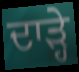
ਦਾੜ੍ਹੇ